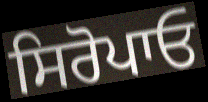
ਸਿਰੋਪਾਓ